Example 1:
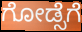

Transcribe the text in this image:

ಗೋಡ್ಸೆಗೆ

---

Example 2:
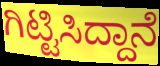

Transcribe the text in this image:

ಗಿಟ್ಟಿಸಿದ್ದಾನೆ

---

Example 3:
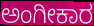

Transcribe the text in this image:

ಅಂಗೀಕಾರ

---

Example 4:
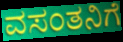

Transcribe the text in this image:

ವಸಂತನಿಗೆ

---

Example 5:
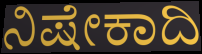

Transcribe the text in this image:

ನಿಷೇಕಾದಿ